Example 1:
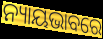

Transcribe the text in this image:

ନ୍ୟାୟଭାବରେ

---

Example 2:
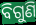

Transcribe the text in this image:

ବିଗୁଣି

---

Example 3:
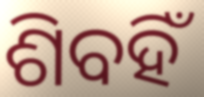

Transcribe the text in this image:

ଶିବହିଁ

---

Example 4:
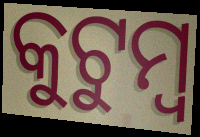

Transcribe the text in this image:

କୁଟୁମ୍ଵ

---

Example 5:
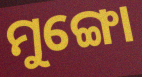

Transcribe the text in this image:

ମୁଙ୍ଗୋ